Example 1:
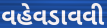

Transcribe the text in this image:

વહેવડાવવી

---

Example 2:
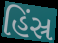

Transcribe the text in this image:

હિંસ્ર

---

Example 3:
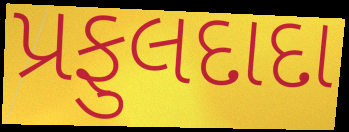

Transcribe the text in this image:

પ્રફુલદાદા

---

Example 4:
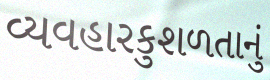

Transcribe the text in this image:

વ્યવહારકુશળતાનું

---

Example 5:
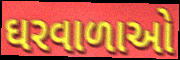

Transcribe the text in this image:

ઘરવાળાઓ